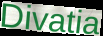
Divatia